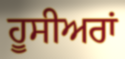
ਹੂਸੀਅਰਾਂ